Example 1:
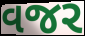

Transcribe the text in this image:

વજર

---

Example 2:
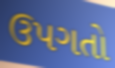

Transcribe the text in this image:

ઉપગતો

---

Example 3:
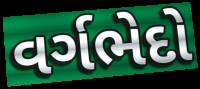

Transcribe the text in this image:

વર્ગભેદો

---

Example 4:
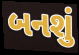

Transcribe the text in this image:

બનશું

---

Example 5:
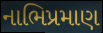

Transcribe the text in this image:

નાભિપ્રમાણ